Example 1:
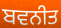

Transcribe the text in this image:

ਬਵਨੀਤ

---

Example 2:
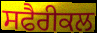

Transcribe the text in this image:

ਸਫੈਰੀਕਲ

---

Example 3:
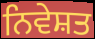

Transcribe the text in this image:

ਨਿਵੇਸ਼ਤ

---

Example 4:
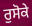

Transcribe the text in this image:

ਰੁਸੋਕੇ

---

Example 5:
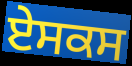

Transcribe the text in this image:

ਏਸਕਸ